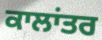
ਕਾਲਾਂਤਰ